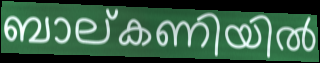
ബാല്കണിയിൽ